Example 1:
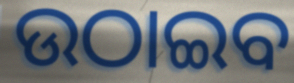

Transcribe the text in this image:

ଉଠାଇବ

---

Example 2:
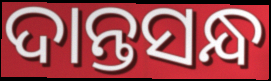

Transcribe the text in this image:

ଦାନ୍ତସନ୍ଧ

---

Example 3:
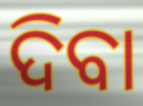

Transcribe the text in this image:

ଦିବା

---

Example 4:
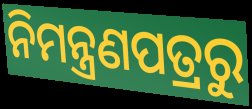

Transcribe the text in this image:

ନିମନ୍ତ୍ରଣପତ୍ରରୁ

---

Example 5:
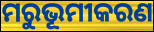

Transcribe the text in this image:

ମରୁଭୂମୀକରଣ